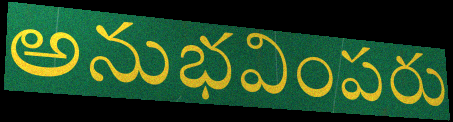
అనుభవింపరు